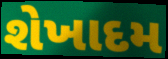
શેખાદમ